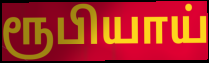
ரூபியாய்